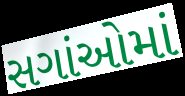
સગાંઓમાં